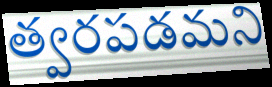
త్వరపడమని